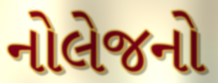
નોલેજનો